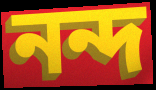
নন্দ